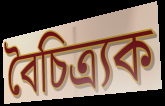
বৈচিত্ৰ্যক